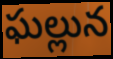
ఘల్లున